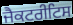
ਜੈਕਟਰੀਟਿਸ